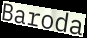
Baroda